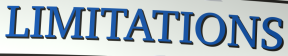
LIMITATIONS